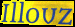
Illouz